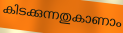
കിടക്കുന്നതുകാണാം